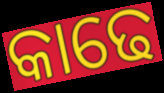
କାଢେ